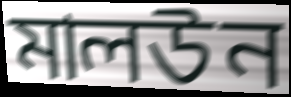
মালউন